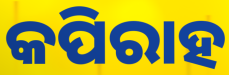
କପିରାହ